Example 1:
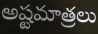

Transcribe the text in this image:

అష్టమాత్రలు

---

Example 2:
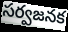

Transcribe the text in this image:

సర్వజనక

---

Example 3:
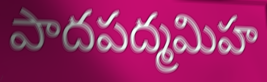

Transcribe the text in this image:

పాదపద్మమిహ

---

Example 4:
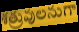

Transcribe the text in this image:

శత్రువులనుగా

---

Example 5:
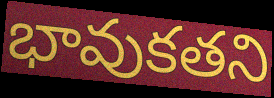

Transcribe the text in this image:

భావుకతని